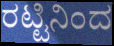
ರಟ್ಟಿನಿಂದ